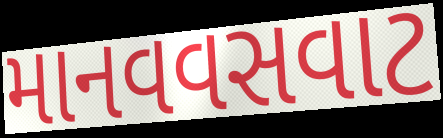
માનવવસવાટ